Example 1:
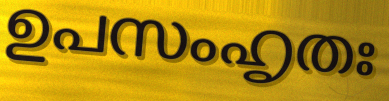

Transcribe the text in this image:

ഉപസംഹൃതഃ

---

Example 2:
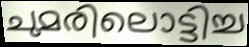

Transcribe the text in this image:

ചുമരിലൊട്ടിച്ച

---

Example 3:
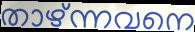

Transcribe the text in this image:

താഴ്ന്നവനെ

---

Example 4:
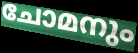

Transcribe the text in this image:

ചോമനും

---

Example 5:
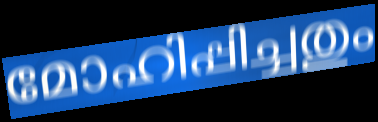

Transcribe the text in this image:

മോഹിപ്പിച്ചതും